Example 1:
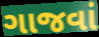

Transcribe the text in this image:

ગાજવાં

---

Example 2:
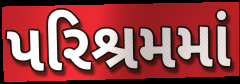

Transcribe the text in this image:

પરિશ્રમમાં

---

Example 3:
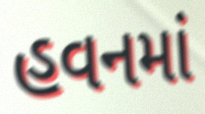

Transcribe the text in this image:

હવનમાં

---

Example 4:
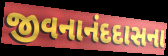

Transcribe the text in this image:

જીવનાનંદદાસના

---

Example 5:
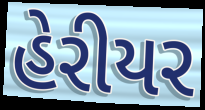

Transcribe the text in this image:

હેરીયર